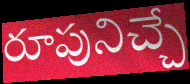
రూపునిచ్చే